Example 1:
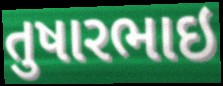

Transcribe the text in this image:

તુષારભાઇ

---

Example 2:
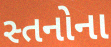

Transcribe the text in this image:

સ્તનોના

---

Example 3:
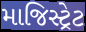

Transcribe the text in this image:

માજિસ્ટ્રેટ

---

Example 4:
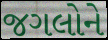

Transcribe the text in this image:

જગલોને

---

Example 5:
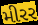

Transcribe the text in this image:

મીરર